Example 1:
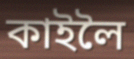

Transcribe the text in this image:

কাইলৈ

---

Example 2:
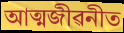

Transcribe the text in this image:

আত্মজীৱনীত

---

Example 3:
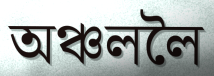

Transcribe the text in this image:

অঞ্চললৈ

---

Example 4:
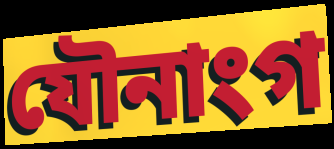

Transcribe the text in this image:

যৌনাংগ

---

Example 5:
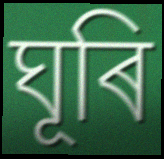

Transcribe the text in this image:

ঘূৰি